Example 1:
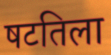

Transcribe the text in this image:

षटतिला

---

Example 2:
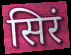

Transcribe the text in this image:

सिरं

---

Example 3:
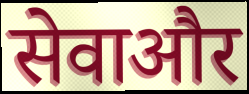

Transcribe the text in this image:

सेवाऔर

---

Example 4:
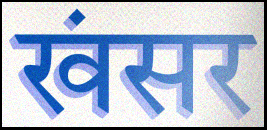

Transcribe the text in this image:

खंसर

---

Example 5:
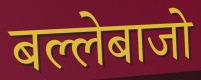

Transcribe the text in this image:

बल्लेबाजो